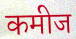
कमीज